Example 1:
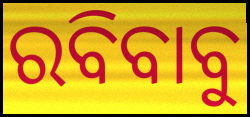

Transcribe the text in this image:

ରବିବାବୁ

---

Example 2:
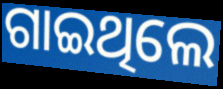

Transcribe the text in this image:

ଗାଇଥିଲେ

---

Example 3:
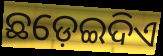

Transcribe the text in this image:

ଛଡ଼େଇଦିଏ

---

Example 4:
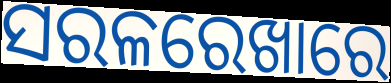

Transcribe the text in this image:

ସରଳରେଖାରେ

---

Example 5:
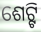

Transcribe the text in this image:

ଶେଟ୍ଟି